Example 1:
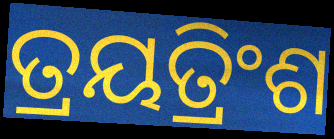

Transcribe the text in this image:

ତ୍ରୟତ୍ରିଂଶ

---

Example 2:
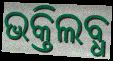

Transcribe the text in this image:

ଭକ୍ତିଲବ୍ଧ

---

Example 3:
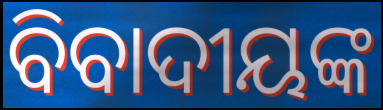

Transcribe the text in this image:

ବିବାଦୀୟଙ୍କ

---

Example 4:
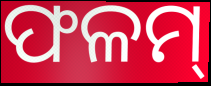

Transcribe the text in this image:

ଫଳମ୍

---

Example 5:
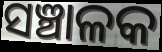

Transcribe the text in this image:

ସଞ୍ଚାଳକ